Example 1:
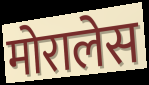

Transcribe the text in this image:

मोरालेस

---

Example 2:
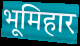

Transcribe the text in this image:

भूमिहार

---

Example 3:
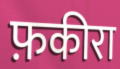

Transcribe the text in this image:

फ़कीरा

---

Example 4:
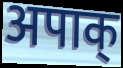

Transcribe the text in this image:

अपाक्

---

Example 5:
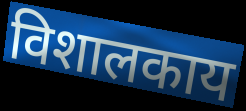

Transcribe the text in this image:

विशालकाय